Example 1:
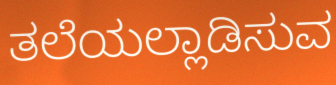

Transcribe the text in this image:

ತಲೆಯಲ್ಲಾಡಿಸುವ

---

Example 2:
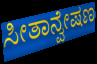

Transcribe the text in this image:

ಸೀತಾನ್ವೇಷಣ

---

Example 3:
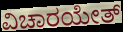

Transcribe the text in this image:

ವಿಚಾರಯೇತ್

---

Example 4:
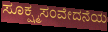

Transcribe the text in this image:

ಸೂಕ್ಷ್ಮಸಂವೇದನೆಯ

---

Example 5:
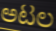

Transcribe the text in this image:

ಅಟಲ